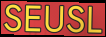
SEUSL